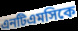
এনটিএমসিকে